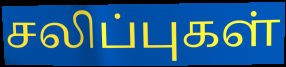
சலிப்புகள்